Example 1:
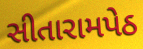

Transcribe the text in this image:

સીતારામપેઠ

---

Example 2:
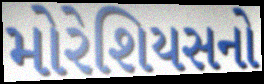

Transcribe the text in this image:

મોરેશિયસનો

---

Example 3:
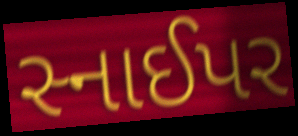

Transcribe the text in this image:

સ્નાઈપર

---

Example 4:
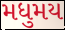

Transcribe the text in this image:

મધુમય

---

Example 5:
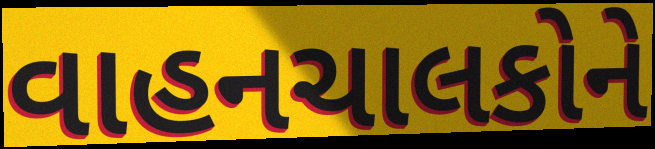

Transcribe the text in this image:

વાહનચાલકોને